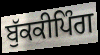
ਬੁੱਕਕੀਪਿੰਗ